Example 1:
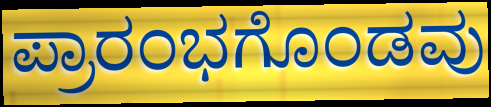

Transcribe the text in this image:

ಪ್ರಾರಂಭಗೊಂಡವು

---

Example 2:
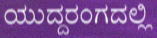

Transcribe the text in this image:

ಯುದ್ದರಂಗದಲ್ಲಿ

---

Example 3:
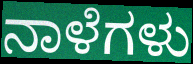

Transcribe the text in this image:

ನಾಳೆಗಳು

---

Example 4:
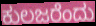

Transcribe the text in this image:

ಕುಲಜರೆಂದು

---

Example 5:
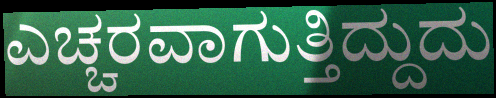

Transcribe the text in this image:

ಎಚ್ಚರವಾಗುತ್ತಿದ್ದುದು